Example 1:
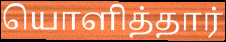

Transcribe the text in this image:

யொளித்தார்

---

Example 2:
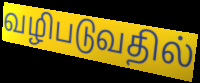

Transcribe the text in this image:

வழிபடுவதில்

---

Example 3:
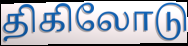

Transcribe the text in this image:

திகிலோடு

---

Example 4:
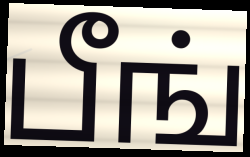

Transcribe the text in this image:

பீங்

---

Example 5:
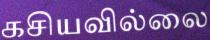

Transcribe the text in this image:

கசியவில்லை